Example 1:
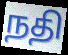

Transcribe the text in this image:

நதி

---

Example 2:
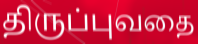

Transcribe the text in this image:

திருப்புவதை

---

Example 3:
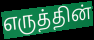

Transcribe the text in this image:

எருத்தின்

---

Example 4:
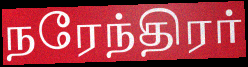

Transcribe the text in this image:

நரேந்திரர்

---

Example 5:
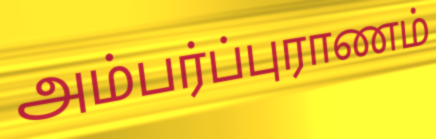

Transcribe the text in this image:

அம்பர்ப்புராணம்